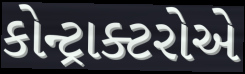
કોન્ટ્રાક્ટરોએ